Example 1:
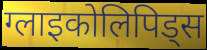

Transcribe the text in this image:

ग्लाइकोलिपिड्स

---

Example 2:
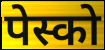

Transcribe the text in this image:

पेस्को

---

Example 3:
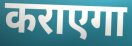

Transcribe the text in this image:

कराएगा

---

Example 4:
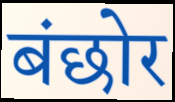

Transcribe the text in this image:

बंछोर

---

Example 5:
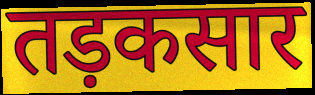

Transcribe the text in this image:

तड़कसार